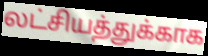
லட்சியத்துக்காக